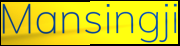
Mansingji